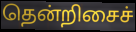
தென்றிசைச்